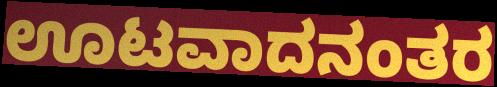
ಊಟವಾದನಂತರ